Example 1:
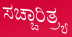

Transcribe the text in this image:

ಸಚ್ಚಾರಿತ್ರ್ಯ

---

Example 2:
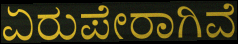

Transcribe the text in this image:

ಏರುಪೇರಾಗಿವೆ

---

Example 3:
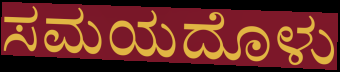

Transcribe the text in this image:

ಸಮಯದೊಳು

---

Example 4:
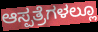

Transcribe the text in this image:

ಆಸ್ಪತ್ರೆಗಳಲ್ಲೂ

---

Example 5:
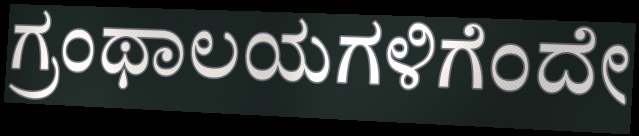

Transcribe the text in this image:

ಗ್ರಂಥಾಲಯಗಳಿಗೆಂದೇ